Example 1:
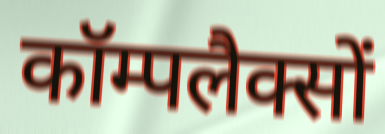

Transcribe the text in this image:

कॉम्पलैक्सों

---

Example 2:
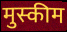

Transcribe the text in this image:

मुस्कीम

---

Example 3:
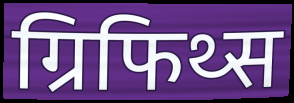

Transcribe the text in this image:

ग्रिफिथ्स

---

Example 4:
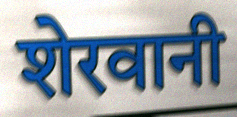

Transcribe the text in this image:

शेरवानी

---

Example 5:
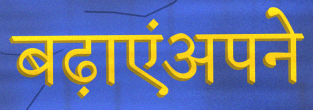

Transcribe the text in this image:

बढ़ाएंअपने